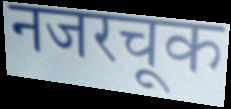
नजरचूक